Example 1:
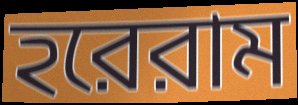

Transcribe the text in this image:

হরেরাম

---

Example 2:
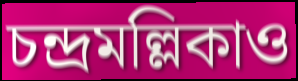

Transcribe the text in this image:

চন্দ্রমল্লিকাও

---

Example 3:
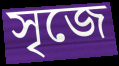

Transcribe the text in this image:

সৃজে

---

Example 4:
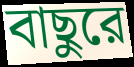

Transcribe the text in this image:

বাছুরে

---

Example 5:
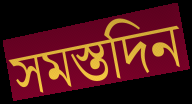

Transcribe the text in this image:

সমস্তদিন